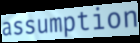
assumption